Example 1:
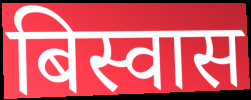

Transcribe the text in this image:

बिस्वास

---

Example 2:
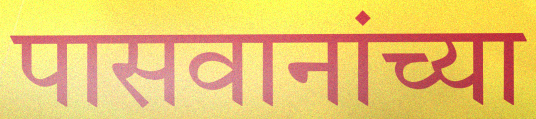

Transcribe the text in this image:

पासवानांच्या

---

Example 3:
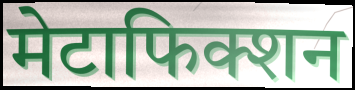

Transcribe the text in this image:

मेटाफिक्शन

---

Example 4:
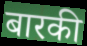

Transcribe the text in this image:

बारकी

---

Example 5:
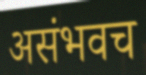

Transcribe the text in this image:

असंभवच